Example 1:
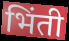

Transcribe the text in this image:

भिंती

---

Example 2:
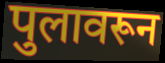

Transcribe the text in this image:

पुलावरून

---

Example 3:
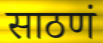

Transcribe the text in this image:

साठणं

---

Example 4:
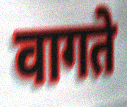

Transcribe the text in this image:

वागते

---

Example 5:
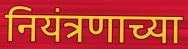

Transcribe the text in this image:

नियंत्रणाच्या